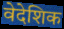
वेदेशिक